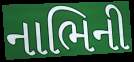
નાભિની